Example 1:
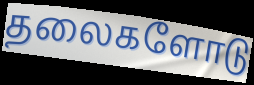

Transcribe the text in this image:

தலைகளோடு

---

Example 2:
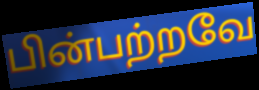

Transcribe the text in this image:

பின்பற்றவே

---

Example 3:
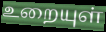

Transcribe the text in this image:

உறையுள்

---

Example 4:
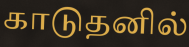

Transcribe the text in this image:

காடுதனில்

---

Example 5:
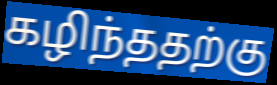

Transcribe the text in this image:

கழிந்ததற்கு